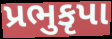
પ્રભુકૃપા